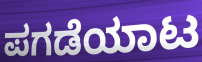
ಪಗಡೆಯಾಟ